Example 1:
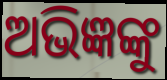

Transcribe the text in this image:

ଅଭିଜ୍ଞଙ୍କୁ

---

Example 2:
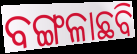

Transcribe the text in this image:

ବଙ୍ଗଳାଛବି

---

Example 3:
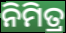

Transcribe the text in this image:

ନିମିତ୍ର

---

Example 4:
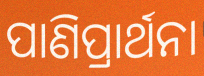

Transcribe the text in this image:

ପାଣିପ୍ରାର୍ଥନା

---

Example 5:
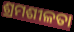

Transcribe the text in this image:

ଶ୍ରମଶୀଳତା